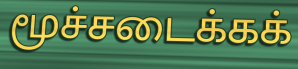
மூச்சடைக்கக்